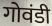
गोवंडी